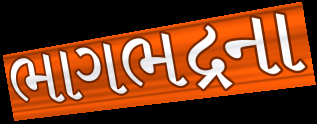
ભાગભદ્રના